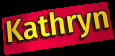
Kathryn